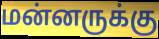
மன்னருக்கு